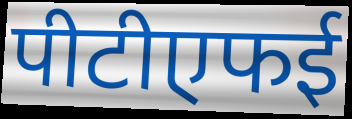
पीटीएफई